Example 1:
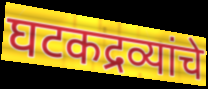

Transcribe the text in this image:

घटकद्रव्यांचे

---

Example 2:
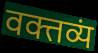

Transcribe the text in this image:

वक्तव्यं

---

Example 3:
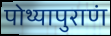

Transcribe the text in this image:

पोथ्यापुराणं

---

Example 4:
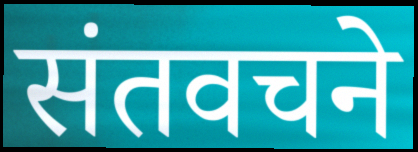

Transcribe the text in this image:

संतवचने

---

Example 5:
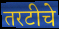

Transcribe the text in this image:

तरटीचे